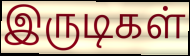
இருடிகள்